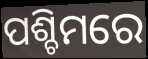
ପଶ୍ଚିମରେ